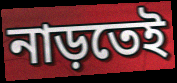
নাড়তেই